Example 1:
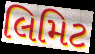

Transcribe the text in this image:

લિમિટ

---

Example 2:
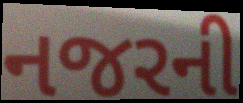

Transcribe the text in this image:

નજરની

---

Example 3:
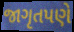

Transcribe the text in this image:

જાગૃતપણે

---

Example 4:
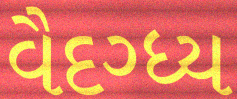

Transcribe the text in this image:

વૈદગ્ધ્ય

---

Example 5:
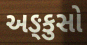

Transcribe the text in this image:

અઙ્કુસો